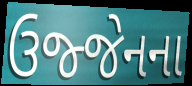
ઉજ્જેનના